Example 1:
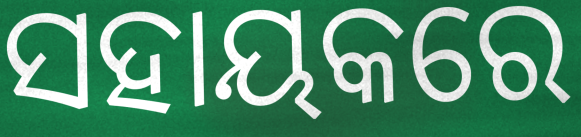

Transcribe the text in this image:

ସହାୟକରେ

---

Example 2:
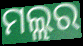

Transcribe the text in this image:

ମଲ୍ଲର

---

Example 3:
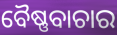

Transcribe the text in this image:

ବୈଷ୍ଣବାଚାର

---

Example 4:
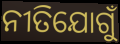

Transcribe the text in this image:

ନୀତିଯୋଗୁଁ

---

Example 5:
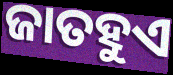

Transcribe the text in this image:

ଜାତହୁଏ